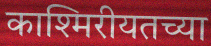
काश्मिरीयतच्या